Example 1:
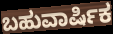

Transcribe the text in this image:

ಬಹುವಾರ್ಷಿಕ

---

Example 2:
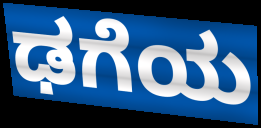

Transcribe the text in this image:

ಢಗೆಯ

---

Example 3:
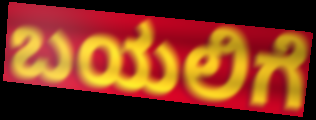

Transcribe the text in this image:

ಬಯಲಿಗೆ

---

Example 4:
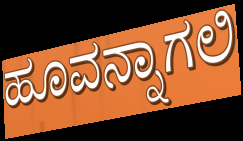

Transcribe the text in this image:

ಹೂವನ್ನಾಗಲಿ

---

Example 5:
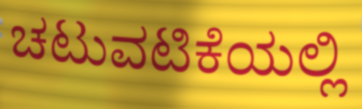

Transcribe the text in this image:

ಚಟುವಟಿಕೆಯಲ್ಲಿ